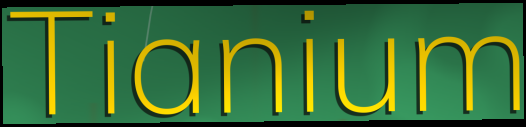
Tianium